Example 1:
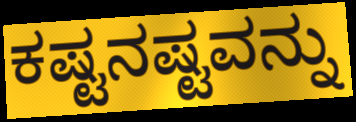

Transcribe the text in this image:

ಕಷ್ಟನಷ್ಟವನ್ನು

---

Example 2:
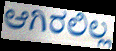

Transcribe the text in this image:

ಆಗಿರಲಿಲ್ಲ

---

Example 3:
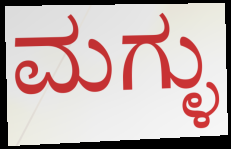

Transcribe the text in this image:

ಮಗ್ಳು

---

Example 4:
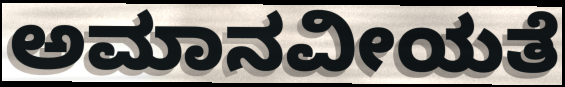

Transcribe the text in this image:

ಅಮಾನವೀಯತೆ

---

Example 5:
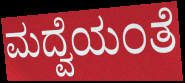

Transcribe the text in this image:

ಮದ್ವೆಯಂತೆ